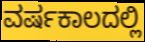
ವರ್ಷಕಾಲದಲ್ಲಿ